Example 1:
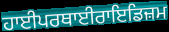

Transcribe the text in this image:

ਹਾਈਪਰਥਾਈਰਾਇਡਿਜ਼ਮ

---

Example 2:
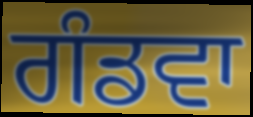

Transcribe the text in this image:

ਗੰਡਵਾ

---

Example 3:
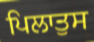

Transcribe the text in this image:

ਪਿਲਾਤੁਸ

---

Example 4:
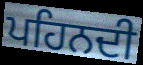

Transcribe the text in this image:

ਪਹਿਨਦੀ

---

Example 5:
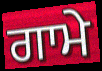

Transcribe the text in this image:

ਗਾਮੇ